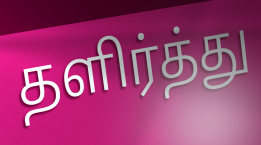
தளிர்த்து